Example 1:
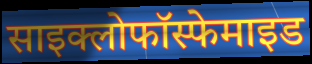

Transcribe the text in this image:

साइक्लोफॉस्फेमाइड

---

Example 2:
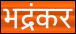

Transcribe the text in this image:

भद्रंकर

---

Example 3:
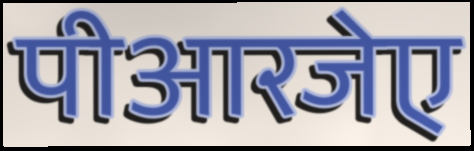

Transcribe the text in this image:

पीआरजेए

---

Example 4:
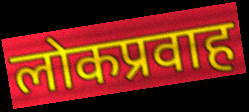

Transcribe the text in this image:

लोकप्रवाह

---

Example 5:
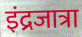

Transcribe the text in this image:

इंद्रजात्रा